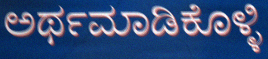
ಅರ್ಥಮಾಡಿಕೊಳ್ಳಿ